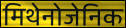
मिथेनोजेनिक